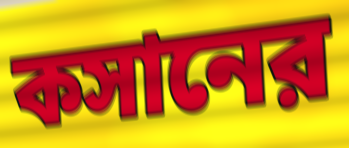
কসানের